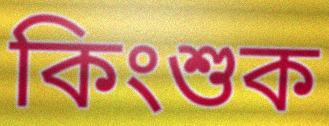
কিংশুক